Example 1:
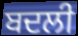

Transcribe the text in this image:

ਬਦਲੀ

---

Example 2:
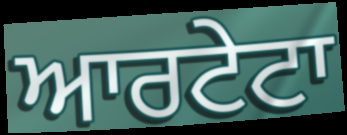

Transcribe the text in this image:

ਆਰਟੇਟਾ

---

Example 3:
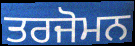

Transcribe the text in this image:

ਤਰਜੋਮਨ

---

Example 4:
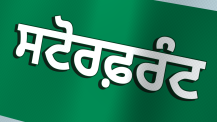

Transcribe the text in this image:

ਸਟੋਰਫ਼ਰੰਟ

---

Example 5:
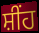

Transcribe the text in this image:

ਸ਼ੀਂਹ